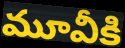
మూవీకి